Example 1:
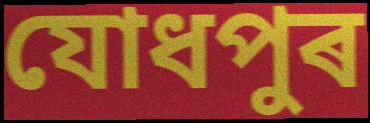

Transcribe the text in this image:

যোধপুৰ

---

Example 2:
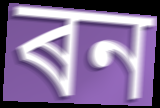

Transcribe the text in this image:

ৰন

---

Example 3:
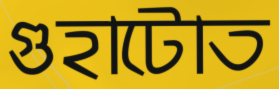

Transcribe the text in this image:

গুহাটোত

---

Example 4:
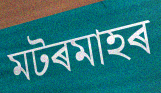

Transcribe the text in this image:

মটৰমাহৰ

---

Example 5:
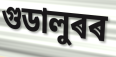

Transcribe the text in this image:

গুডালুৰৰ